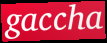
gaccha